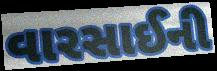
વારસાઈની